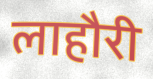
लाहौरी